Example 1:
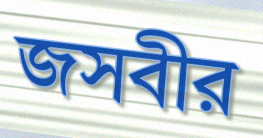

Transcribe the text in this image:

জসবীর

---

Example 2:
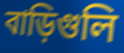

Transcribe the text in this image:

বাড়িগুলি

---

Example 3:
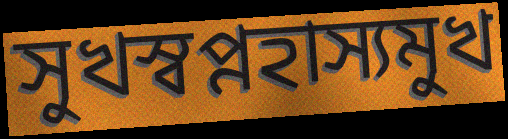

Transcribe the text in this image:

সুখস্বপ্নহাস্যমুখ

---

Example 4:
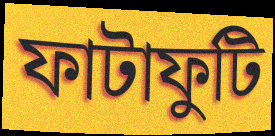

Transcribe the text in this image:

ফাটাফুটি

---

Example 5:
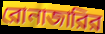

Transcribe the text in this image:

রোনাজারির